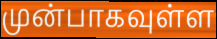
முன்பாகவுள்ள